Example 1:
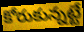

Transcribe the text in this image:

కోరుకున్నట్టే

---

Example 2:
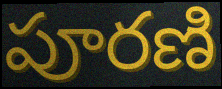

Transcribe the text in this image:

పూరణి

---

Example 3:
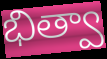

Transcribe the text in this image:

భిత్వా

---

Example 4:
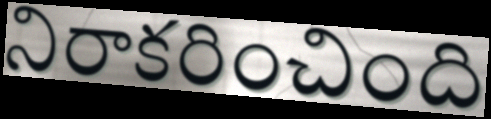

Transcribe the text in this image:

నిరాకరించింది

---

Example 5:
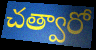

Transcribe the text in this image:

చత్వారో